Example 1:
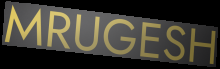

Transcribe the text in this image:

MRUGESH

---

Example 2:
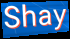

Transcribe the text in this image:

Shay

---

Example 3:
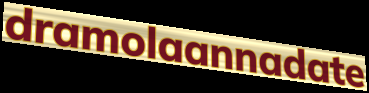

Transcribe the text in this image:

dramolaannadate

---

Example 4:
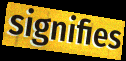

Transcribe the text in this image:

signifies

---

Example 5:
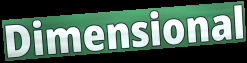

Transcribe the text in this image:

Dimensional